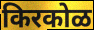
किरकोळ